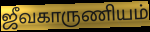
ஜீவகாருணியம்